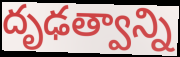
దృఢత్వాన్ని